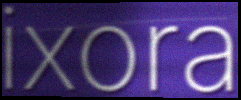
ixora